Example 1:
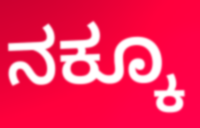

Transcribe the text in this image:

ನಕ್ಕೂ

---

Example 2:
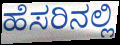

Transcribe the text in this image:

ಹೆಸರಿನಲ್ಲಿ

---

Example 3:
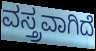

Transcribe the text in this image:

ವಸ್ತ್ರವಾಗಿದೆ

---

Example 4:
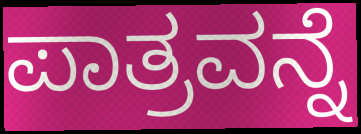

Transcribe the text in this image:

ಪಾತ್ರವನ್ನೆ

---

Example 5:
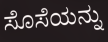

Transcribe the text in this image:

ಸೊಸೆಯನ್ನು